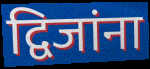
द्विजांना